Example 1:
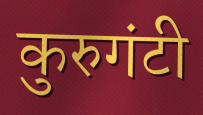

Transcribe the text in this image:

कुरुगंटी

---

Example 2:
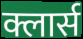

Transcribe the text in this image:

क्लार्स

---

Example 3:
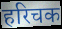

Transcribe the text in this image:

हरिचक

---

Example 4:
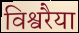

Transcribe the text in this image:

विश्वरैया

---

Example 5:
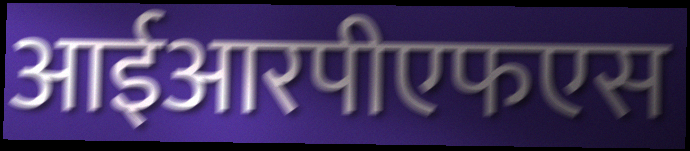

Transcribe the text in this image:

आईआरपीएफएस